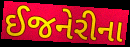
ઈજનેરીના